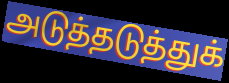
அடுத்தடுத்துக்